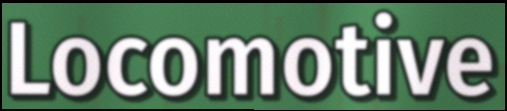
Locomotive